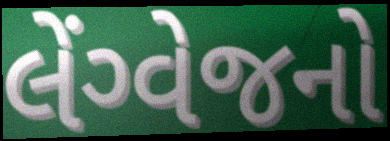
લેંગ્વેજનો